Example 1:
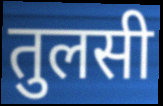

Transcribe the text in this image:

तुलसी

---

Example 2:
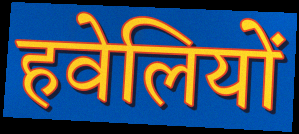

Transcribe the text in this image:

हवेलियों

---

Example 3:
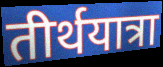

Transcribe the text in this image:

तीर्थयात्रा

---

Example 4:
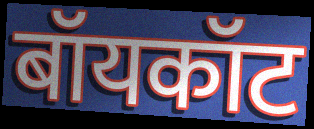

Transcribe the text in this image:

बॉयकॉट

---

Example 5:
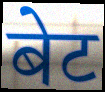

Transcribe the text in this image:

बेट